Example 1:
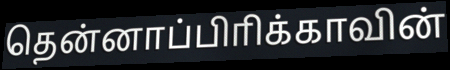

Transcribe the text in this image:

தென்னாப்பிரிக்காவின்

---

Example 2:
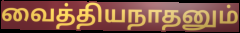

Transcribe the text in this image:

வைத்தியநாதனும்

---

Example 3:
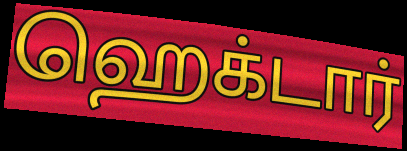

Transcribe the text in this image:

ஹெக்டார்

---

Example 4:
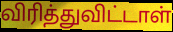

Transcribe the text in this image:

விரித்துவிட்டாள்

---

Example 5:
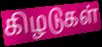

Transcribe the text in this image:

கிழடுகள்